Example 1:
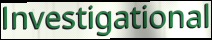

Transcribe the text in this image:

Investigational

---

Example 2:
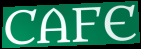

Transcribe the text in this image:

CAFE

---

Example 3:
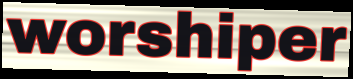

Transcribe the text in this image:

worshiper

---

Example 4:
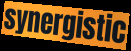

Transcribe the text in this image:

synergistic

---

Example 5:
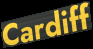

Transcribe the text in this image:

Cardiff